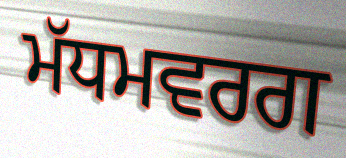
ਮੱਧਮਵਰਗ